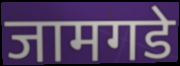
जामगडे